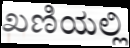
ಖಣಿಯಲ್ಲಿ